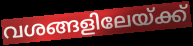
വശങ്ങളിലേയ്ക്ക്